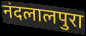
नंदलालपुरा